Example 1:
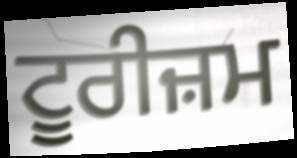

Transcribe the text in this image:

ਟੂਰੀਜ਼ਮ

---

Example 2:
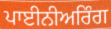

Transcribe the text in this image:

ਪਾਈਨੀਅਰਿੰਗ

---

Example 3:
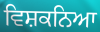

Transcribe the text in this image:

ਵਿਸ਼ਕਨਿਆ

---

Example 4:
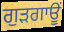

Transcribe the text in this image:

ਗੁੜਗਾਊਂ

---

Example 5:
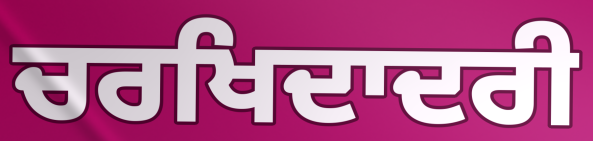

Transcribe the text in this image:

ਚਰਖਿਦਾਦਰੀ